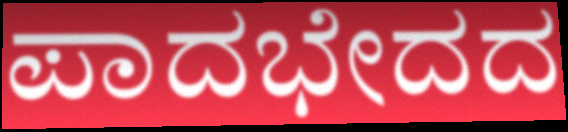
ಪಾದಭೇದದ